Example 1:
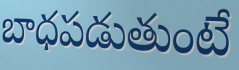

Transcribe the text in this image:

బాధపడుతుంటే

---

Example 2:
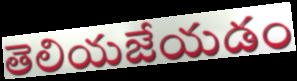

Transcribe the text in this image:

తెలియజేయడం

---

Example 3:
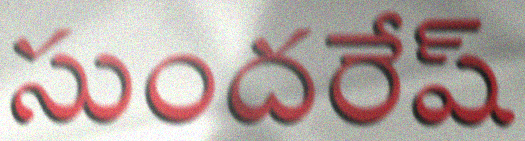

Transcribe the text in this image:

సుందరేష్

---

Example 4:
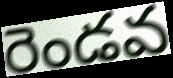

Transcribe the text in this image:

రెండవ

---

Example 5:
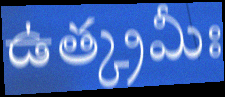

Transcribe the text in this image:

ఉత్క్రమీః